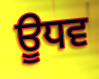
ਊਧਵ